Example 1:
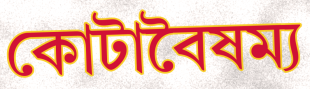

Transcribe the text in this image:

কোটাবৈষম্য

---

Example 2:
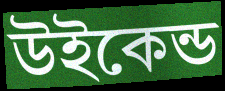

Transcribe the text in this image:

উইকেন্ড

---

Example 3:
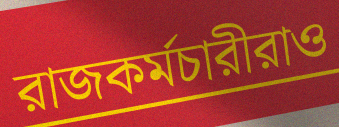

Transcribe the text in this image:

রাজকর্মচারীরাও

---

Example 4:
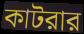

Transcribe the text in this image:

কাটরার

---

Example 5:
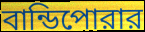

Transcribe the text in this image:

বান্ডিপোরার